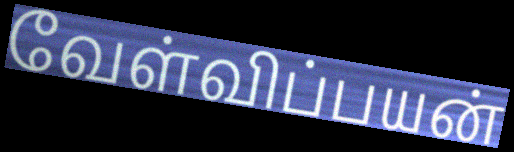
வேள்விப்பயன்